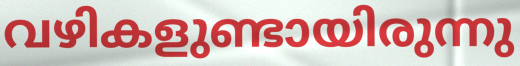
വഴികളുണ്ടായിരുന്നു